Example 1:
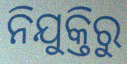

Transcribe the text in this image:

ନିଯୁକ୍ତିରୁ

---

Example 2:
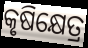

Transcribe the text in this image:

କୃଷିକ୍ଷେତ୍ର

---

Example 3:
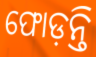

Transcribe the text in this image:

ଫୋଡ଼ନ୍ତି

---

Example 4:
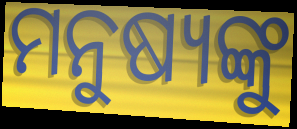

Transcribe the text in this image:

ମନୁଷ୍ୟଙ୍କୁ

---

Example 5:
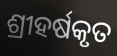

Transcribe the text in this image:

ଶ୍ରୀହର୍ଷକୃତ